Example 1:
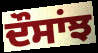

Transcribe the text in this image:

ਦੌਸਾਂਝ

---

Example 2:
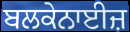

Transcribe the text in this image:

ਬਲਕੇਨਾਈਜ਼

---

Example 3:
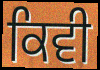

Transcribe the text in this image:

ਕਿਵੀ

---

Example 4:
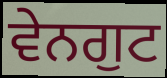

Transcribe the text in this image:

ਵੇਨਗੁਟ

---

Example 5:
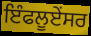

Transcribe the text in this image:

ਇੰਫਲੂਏਂਸਰ